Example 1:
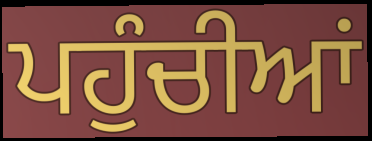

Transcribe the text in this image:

ਪਹੁੰਚੀਆਂ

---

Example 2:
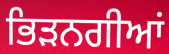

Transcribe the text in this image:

ਭਿੜਨਗੀਆਂ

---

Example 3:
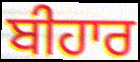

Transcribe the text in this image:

ਬੀਹਾਰ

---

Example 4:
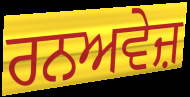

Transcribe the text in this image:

ਰਨਅਵੇਜ਼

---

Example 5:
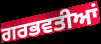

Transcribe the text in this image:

ਗਰਭਵਤੀਆਂ